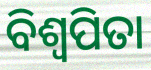
ବିଶ୍ୱପିତା